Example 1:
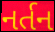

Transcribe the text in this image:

નર્તન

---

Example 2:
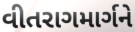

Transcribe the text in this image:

વીતરાગમાર્ગને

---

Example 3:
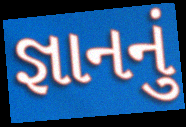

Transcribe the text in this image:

જ્ઞાનનું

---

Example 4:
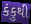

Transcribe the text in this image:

કંકુથી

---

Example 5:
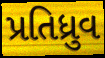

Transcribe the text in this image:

પ્રતિધ્રુવ